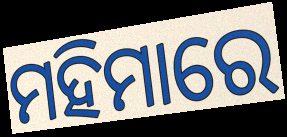
ମହିମାରେ